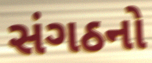
સંગઠનો